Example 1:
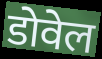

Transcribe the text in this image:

डोवेल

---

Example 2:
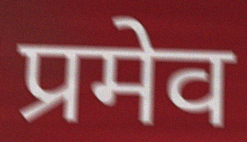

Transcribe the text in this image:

प्रमेव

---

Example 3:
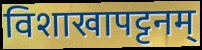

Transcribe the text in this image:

विशाखापट्टनम्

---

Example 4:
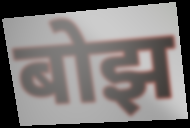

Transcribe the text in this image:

बोझ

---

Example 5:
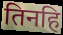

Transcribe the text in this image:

तिनहि